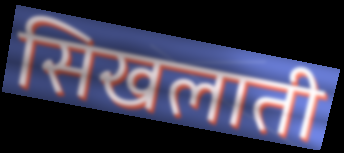
सिखलाती